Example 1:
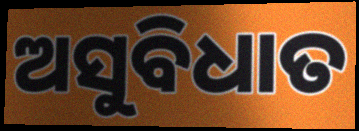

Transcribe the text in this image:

ଅସୁବିଧାତ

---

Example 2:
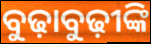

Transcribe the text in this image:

ବୁଢ଼ାବୁଢ଼ୀଙ୍କି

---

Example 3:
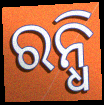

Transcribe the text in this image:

ରନ୍ଧି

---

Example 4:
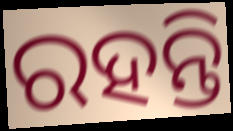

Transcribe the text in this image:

ରହନ୍ତି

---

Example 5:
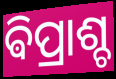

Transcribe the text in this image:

ଵିପ୍ରାଶ୍ଚ